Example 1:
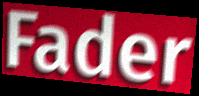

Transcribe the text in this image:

Fader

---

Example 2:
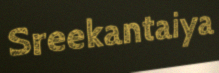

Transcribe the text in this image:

Sreekantaiya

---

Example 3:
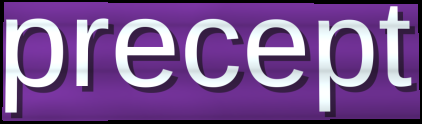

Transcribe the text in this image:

precept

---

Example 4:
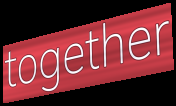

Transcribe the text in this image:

together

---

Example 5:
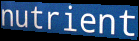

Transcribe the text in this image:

nutrient